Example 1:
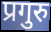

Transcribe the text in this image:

प्रगुरु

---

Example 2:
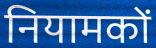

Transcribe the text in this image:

नियामकों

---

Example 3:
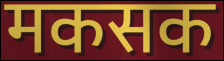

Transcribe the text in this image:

मकसक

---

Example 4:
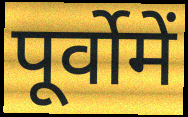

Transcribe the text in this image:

पूर्वोमें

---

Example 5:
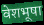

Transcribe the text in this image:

वेशभूषा